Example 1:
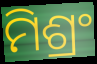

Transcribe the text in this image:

ମିଶ୍ରଂ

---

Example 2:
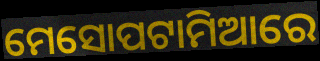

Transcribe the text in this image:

ମେସୋପଟାମିଆରେ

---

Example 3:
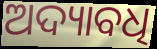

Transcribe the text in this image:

ଅଦ୍ୟାବଧି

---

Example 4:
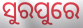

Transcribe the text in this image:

ସୁରପୁରେ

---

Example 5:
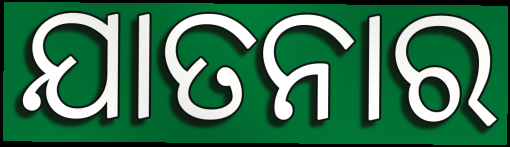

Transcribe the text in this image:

ଯାତନାର